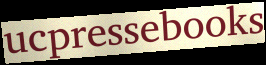
ucpressebooks